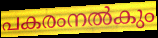
പകരംനൽകും